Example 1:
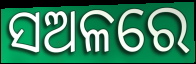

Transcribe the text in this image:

ସଅଳରେ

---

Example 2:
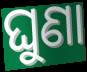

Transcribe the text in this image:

ଘୁଣା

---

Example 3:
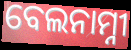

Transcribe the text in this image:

ବେଲନାମ୍ନୀ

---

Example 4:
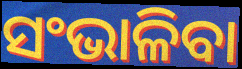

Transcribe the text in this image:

ସଂଭାଳିବା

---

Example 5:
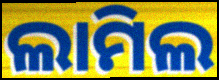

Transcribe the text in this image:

ଲାମିଲ